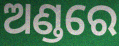
ଅଣ୍ଡରେ